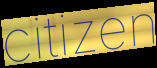
citizen